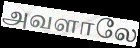
அவளாலே